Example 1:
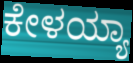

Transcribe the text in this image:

ಕೇಳಯ್ಯಾ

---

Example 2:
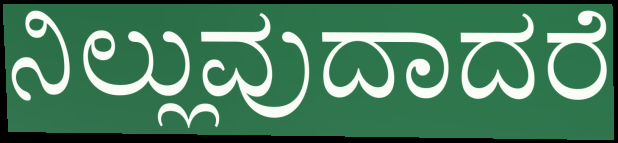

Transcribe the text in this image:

ನಿಲ್ಲುವುದಾದರೆ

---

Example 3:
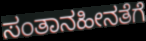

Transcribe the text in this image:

ಸಂತಾನಹೀನತೆಗೆ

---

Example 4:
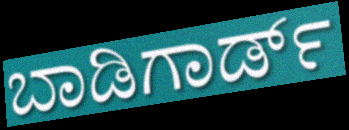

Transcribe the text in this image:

ಬಾಡಿಗಾರ್ಡ್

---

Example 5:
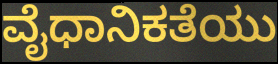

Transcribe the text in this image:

ವೈಧಾನಿಕತೆಯು